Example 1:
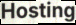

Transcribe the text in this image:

Hosting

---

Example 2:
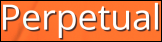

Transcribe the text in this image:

Perpetual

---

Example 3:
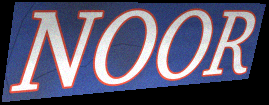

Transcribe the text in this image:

NOOR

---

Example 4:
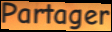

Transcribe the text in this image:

Partager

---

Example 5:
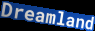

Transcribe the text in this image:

Dreamland